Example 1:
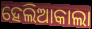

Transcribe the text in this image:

ହେଲିଆକାଲା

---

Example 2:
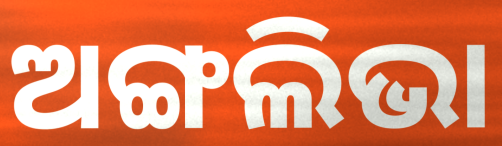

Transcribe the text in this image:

ଅଙ୍ଗଲିଭା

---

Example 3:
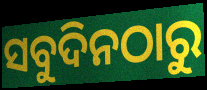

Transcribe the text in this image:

ସବୁଦିନଠାରୁ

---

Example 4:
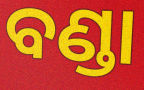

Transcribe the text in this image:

ବଣ୍ଡା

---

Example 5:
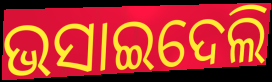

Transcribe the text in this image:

ଭସାଇଦେଲି